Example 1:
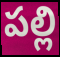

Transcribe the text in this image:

పల్లి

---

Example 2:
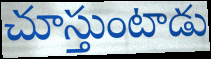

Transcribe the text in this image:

చూస్తుంటాడు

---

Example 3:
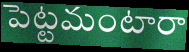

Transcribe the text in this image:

పెట్టమంటారా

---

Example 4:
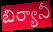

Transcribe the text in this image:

బిర్యానీ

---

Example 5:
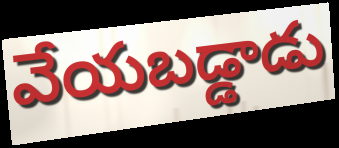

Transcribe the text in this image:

వేయబడ్డాడు